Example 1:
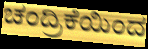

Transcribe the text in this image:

ಚಂದ್ರಿಕೆಯಿಂದ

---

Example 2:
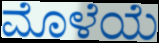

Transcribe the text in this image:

ಮೊಳೆಯೆ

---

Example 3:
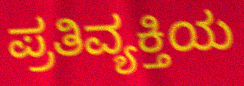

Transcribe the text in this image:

ಪ್ರತಿವ್ಯಕ್ತಿಯ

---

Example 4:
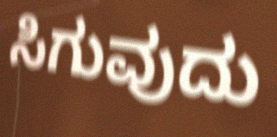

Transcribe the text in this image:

ಸಿಗುವುದು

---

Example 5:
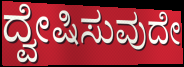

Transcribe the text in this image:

ದ್ವೇಷಿಸುವುದೇ